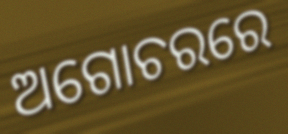
ଅଗୋଚରରେ